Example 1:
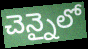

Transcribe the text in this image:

చెన్నైలో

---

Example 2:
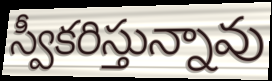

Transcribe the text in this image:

స్వీకరిస్తున్నావు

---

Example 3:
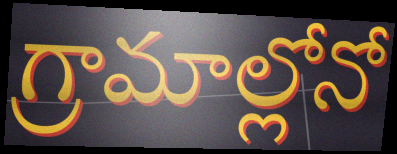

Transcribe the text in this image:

గ్రామాల్లోనో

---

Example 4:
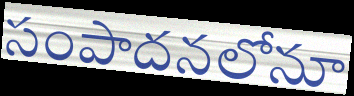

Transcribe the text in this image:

సంపాదనలోనూ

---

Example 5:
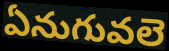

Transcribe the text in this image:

ఏనుగువలె